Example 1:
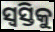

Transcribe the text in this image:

ସ୍ୱସ୍ତିକୁ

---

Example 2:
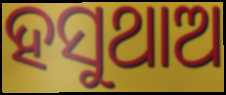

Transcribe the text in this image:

ହସୁଥାଅ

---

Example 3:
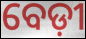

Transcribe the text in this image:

ବେଡ଼ୀ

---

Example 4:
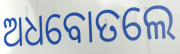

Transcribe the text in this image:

ଅଧବୋତଲେ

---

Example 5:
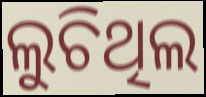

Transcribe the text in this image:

ଲୁଚିଥିଲ